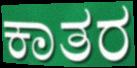
ಕಾತರ